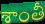
శాంతీ